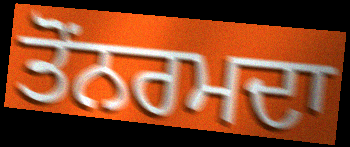
ਤੋਂਨਰਮਦਾ